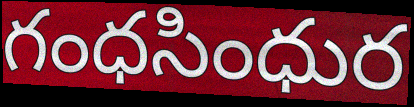
గంధసింధుర